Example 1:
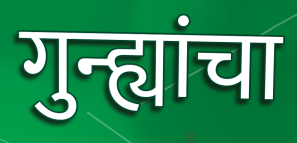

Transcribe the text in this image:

गुन्ह्यांचा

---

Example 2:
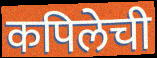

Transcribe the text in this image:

कपिलेची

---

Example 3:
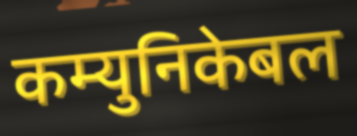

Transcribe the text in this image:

कम्युनिकेबल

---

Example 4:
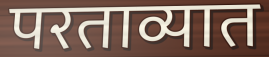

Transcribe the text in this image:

परताव्यात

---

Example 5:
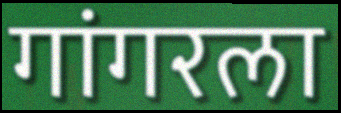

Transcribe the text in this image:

गांगरला